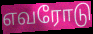
எவரோடு